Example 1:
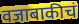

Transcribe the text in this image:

वजाबाकीचं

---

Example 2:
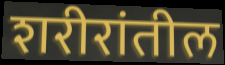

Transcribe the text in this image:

शरीरांतील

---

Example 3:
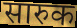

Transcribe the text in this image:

सारुक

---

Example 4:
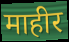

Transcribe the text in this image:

माहीर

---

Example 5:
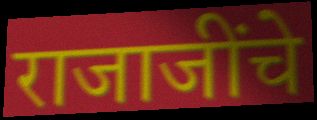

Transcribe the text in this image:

राजाजींचे